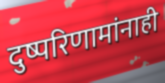
दुष्परिणामांनाही